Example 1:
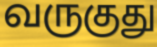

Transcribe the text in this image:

வருகுது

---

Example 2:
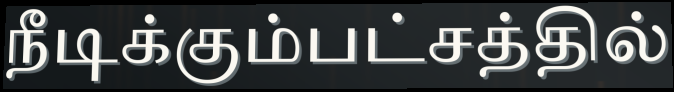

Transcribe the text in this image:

நீடிக்கும்பட்சத்தில்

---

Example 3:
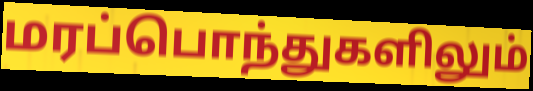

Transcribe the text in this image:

மரப்பொந்துகளிலும்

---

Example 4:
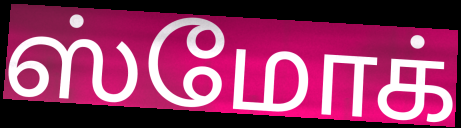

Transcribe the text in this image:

ஸ்மோக்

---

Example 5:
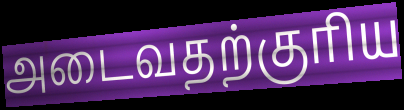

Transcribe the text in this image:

அடைவதற்குரிய